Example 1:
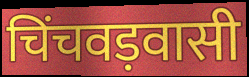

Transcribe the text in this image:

चिंचवड़वासी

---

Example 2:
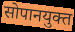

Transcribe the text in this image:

सोपानयुक्त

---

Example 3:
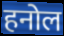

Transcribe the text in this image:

हनोल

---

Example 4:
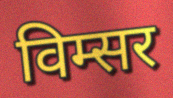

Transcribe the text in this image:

विम्सर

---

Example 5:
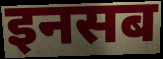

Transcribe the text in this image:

इनसब